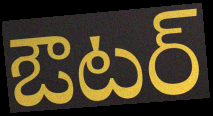
ఔటర్